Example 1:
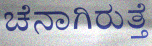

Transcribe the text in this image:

ಚೆನಾಗಿರುತ್ತೆ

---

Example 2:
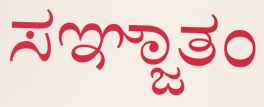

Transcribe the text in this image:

ಸಞ್ಜಾತಂ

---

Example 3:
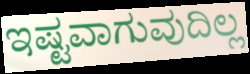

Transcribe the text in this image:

ಇಷ್ಟವಾಗುವುದಿಲ್ಲ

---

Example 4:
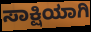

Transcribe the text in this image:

ಸಾಕ್ಷಿಯಾಗಿ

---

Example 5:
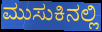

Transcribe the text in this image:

ಮುಸುಕಿನಲ್ಲಿ